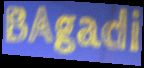
BAgadi